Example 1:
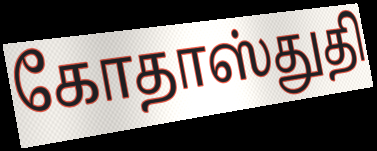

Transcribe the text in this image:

கோதாஸ்துதி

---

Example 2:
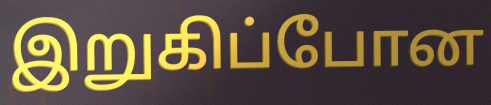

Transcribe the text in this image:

இறுகிப்போன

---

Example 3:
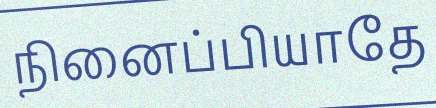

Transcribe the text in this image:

நினைப்பியாதே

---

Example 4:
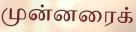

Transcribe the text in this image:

முன்னரைக்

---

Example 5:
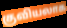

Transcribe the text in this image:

குவியலாக